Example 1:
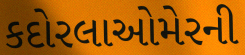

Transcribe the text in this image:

કદોરલાઓમેરની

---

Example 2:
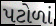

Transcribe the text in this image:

પટોળાં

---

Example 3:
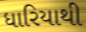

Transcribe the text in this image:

ધારિયાથી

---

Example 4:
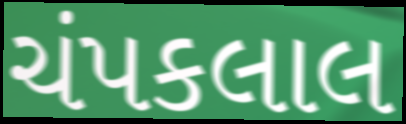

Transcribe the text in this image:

ચંપકલાલ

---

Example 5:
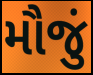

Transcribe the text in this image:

મૌજું